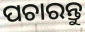
ପଚାରନ୍ତୁ